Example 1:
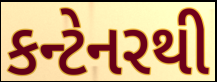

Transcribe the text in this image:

કન્ટેનરથી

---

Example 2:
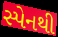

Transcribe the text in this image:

સ્પેનથી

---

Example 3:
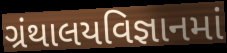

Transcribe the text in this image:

ગ્રંથાલયવિજ્ઞાનમાં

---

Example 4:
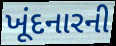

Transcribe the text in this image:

ખૂંદનારની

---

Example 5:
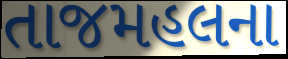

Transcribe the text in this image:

તાજમહલના